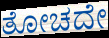
ತೋಚದೇ